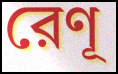
রেণূ